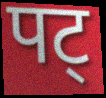
पट्